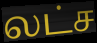
லட்ச